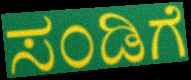
ಸಂಡಿಗೆ